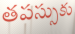
తపస్సుకు